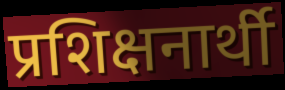
प्रशिक्षनार्थी